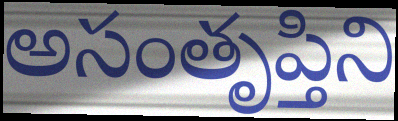
అసంతృప్తిని